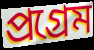
প্ৰগ্ৰেম